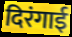
दिरंगाई